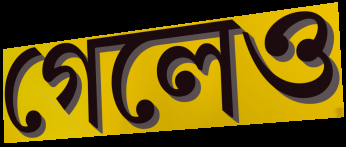
গেলেও